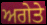
ਅਗੇਤੇ